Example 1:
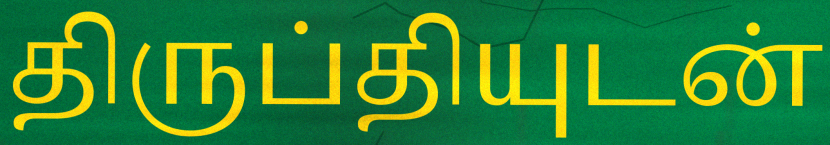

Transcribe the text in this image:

திருப்தியுடன்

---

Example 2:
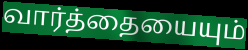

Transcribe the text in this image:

வார்த்தையையும்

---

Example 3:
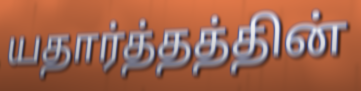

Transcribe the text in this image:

யதார்த்தத்தின்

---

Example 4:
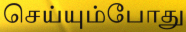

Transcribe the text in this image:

செய்யும்போது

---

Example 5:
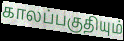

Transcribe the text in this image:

காலப்பகுதியும்